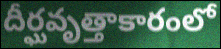
దీర్ఘవృత్తాకారంలో